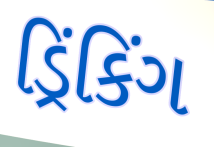
ડ્રિંકિંગ